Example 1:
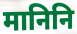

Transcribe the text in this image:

मानिनि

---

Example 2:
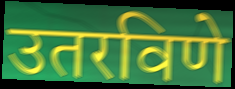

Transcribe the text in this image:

उतरविणे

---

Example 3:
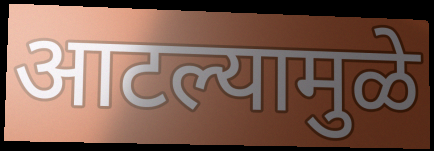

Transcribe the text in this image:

आटल्यामुळे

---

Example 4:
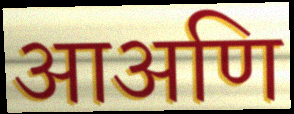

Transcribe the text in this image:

आअणि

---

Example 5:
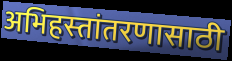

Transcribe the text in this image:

अभिहस्तांतरणासाठी